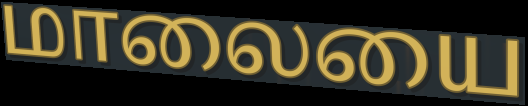
மாலையை